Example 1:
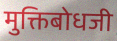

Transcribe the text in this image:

मुक्तिबोधजी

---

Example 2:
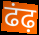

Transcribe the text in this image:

ढंढ़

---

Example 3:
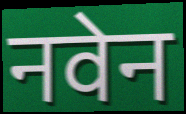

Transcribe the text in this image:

नवेन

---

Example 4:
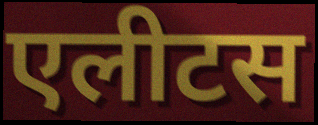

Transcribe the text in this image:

एलीटस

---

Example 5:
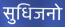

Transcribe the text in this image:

सुधिजनो